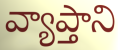
వ్యాప్తాని